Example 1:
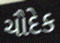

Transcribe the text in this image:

ચૌદેક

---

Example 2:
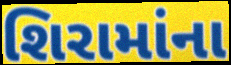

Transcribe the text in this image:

શિરામાંના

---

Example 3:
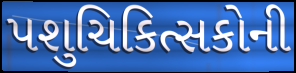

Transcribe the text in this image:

પશુચિકિત્સકોની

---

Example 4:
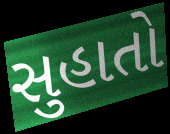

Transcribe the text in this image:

સુહાતો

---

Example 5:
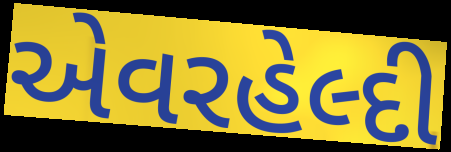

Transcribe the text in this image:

એવરહેલ્દી